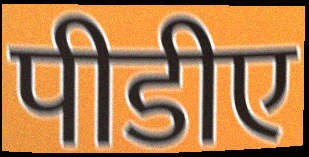
पीडीए